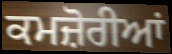
ਕਮਜ਼ੋਰੀਆਂ